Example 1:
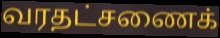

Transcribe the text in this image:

வரதட்சணைக்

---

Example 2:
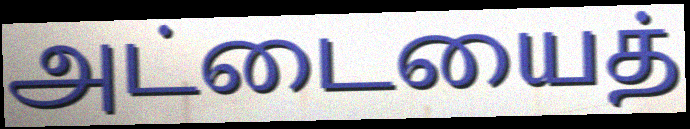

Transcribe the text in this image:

அட்டையைத்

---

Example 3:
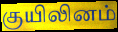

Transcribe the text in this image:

குயிலினம்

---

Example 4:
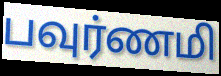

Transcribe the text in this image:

பவுர்ணமி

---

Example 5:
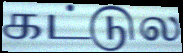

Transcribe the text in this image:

கட்டுல